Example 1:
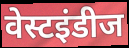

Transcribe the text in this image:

वेस्टइंडीज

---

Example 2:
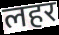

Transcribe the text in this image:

लहर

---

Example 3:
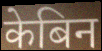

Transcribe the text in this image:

केबिन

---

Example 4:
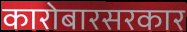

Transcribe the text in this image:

कारोबारसरकार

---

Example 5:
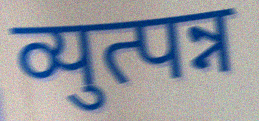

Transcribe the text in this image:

व्युत्पन्न